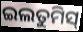
ଇଲତୁମିସ୍